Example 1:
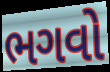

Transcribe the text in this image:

ભગવો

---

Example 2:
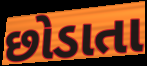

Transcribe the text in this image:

છોડાતા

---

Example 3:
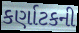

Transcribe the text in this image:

કર્ણાટકની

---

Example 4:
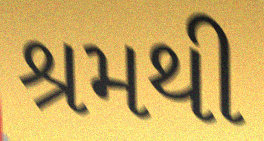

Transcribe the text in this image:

શ્રમથી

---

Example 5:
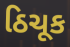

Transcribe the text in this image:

ઠિચૂક